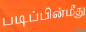
படிப்பின்மீது